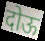
दोऊ